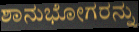
ಶಾನುಭೋಗರನ್ನು